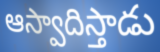
ఆస్వాదిస్తాడు